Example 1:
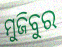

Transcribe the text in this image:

ମୁଜିବୁର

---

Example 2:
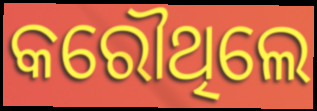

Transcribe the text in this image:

କରୌଥିଲେ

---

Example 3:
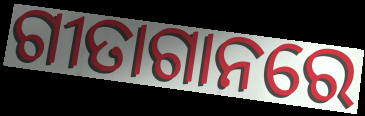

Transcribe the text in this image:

ଗୀତାଗାନରେ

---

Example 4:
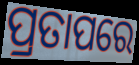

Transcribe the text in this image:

ପ୍ରତାପରେ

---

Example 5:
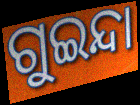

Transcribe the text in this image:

ଗୁଇନ୍ଦା